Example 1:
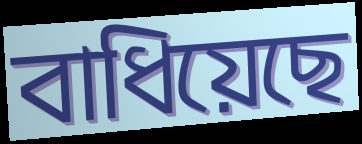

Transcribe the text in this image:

বাধিয়েছে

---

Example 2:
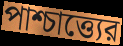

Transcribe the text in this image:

পাশ্চাত্ত্যের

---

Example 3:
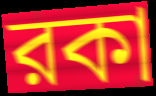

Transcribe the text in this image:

রকা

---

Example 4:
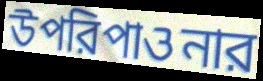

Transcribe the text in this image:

উপরিপাওনার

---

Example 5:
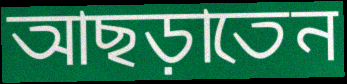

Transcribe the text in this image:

আছড়াতেন